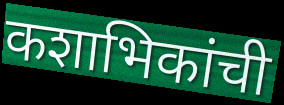
कशाभिकांची